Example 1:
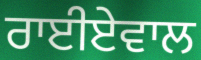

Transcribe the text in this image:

ਰਾਈਏਵਾਲ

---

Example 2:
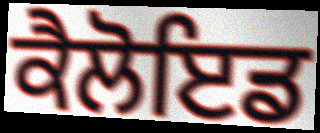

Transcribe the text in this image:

ਕੈਲੋਇਡ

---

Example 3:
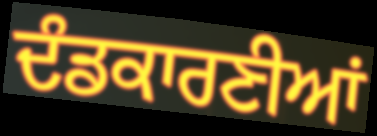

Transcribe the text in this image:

ਦੰਡਕਾਰਣੀਆਂ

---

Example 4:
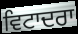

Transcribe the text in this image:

ਵਿਟਾਦਰਾ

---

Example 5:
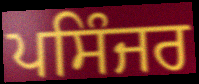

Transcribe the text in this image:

ਪਸਿੰਜਰ